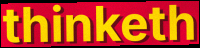
thinketh